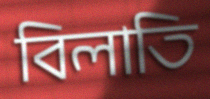
বিলাতি